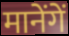
मानेंगें